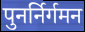
पुनर्निर्गमन